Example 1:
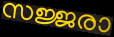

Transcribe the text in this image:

സജ്ജരാ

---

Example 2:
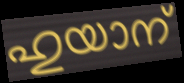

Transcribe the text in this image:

ഹുയാന്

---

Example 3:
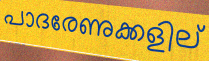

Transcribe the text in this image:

പാദരേണുക്കളില്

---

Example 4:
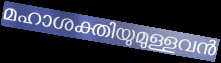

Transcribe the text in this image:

മഹാശക്തിയുമുള്ളവൻ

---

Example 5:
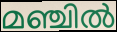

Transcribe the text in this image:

മഞ്ചിൽ